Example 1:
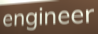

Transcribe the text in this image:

engineer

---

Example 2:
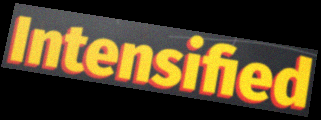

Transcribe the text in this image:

Intensified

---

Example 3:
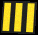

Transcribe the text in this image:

lll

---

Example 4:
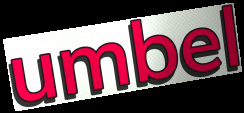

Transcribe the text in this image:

umbel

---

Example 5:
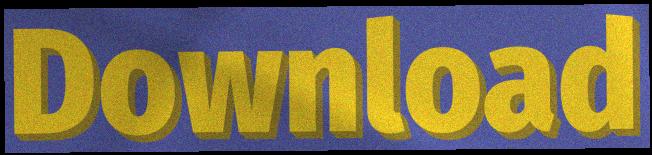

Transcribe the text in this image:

Download